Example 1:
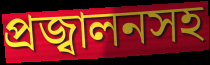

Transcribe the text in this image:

প্রজ্বালনসহ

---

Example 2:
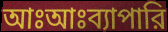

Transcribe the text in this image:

আঃআঃব্যাপারি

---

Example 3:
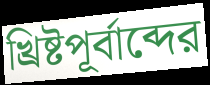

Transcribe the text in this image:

খ্রিষ্টপূর্বাব্দের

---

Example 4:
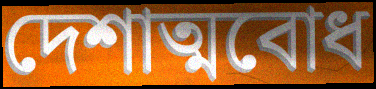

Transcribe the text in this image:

দেশাত্মবোধ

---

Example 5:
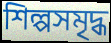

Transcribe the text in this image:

শিল্পসমৃদ্ধ